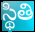
స్థితి